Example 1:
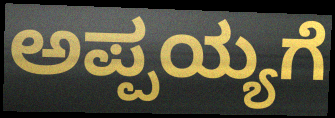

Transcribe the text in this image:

ಅಪ್ಪಯ್ಯಗೆ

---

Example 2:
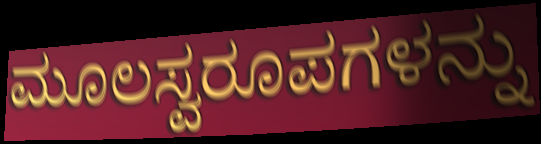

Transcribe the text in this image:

ಮೂಲಸ್ವರೂಪಗಳನ್ನು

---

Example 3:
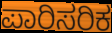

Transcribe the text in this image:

ಪಾರಿಸರಿಕ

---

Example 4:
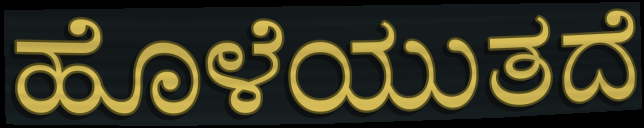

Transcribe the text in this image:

ಹೊಳೆಯುತದೆ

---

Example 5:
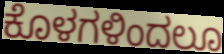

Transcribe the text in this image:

ಕೊಳಗಳಿಂದಲೂ